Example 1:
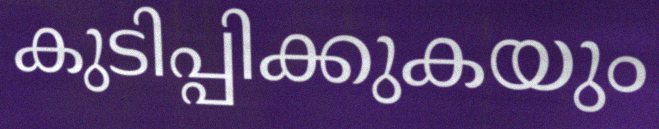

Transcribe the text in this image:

കുടിപ്പിക്കുകയും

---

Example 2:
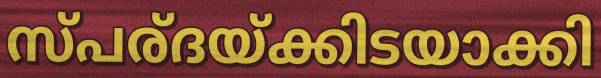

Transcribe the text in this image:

സ്പര്ദയ്ക്കിടയാക്കി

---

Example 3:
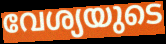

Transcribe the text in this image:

വേശ്യയുടെ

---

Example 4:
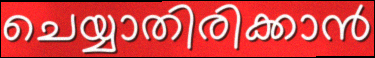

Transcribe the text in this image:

ചെയ്യാതിരിക്കാൻ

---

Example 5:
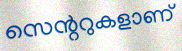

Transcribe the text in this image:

സെന്ററുകളാണ്